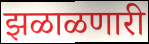
झळाळणारी